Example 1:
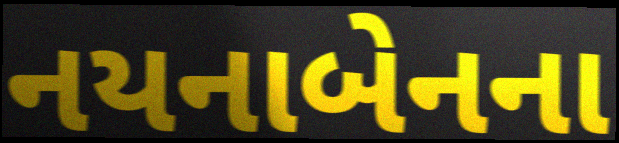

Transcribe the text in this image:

નયનાબેનના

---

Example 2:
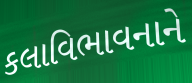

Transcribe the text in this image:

કલાવિભાવનાને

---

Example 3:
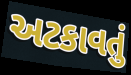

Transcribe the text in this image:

અટકાવતું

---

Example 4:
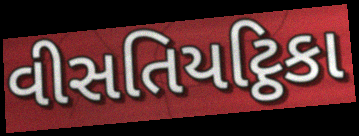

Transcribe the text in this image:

વીસતિયટ્ઠિકા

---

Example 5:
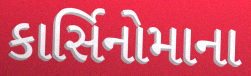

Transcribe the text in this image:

કાર્સિનોમાના